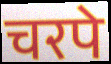
चरपे